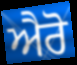
ਐਰੋ